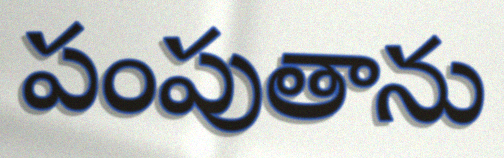
పంపుతాను